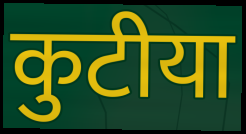
कुटीया